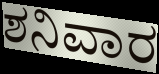
ಶನಿವಾರ